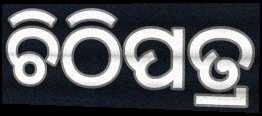
ଚିଠିପତ୍ର